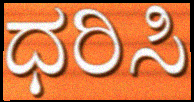
ಧರಿಸಿ